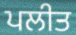
ਪਲੀਤ